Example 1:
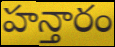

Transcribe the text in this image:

హన్తారం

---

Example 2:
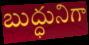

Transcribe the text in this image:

బుద్ధునిగా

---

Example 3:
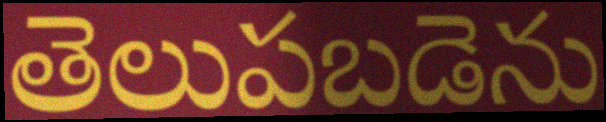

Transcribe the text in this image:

తెలుపబడెను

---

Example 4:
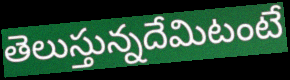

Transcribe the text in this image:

తెలుస్తున్నదేమిటంటే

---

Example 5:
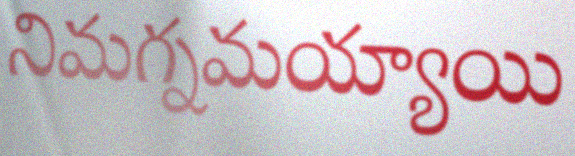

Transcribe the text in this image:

నిమగ్నమయ్యాయి